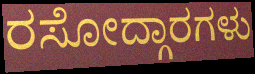
ರಸೋದ್ಗಾರಗಳು